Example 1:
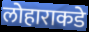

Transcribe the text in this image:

लोहाराकडे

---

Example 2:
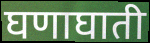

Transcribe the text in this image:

घणाघाती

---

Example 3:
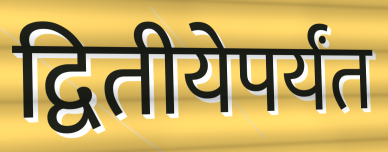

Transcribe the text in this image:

द्वितीयेपर्यंत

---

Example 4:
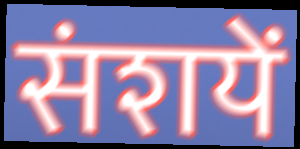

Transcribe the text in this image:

संशयें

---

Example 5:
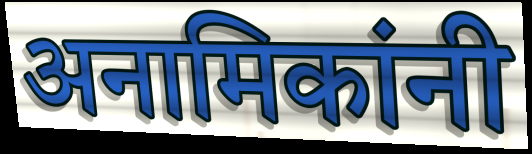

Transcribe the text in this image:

अनामिकांनी